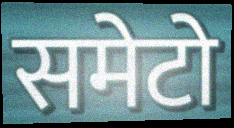
समेटो